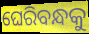
ଘେରିବନ୍ଧକୁ